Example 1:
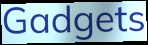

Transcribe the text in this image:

Gadgets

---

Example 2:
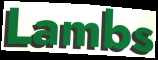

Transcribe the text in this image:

Lambs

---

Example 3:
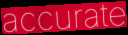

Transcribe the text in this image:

accurate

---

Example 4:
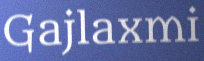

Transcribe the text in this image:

Gajlaxmi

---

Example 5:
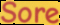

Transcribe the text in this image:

Sore